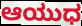
ಆಯುಧ